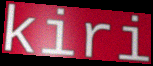
kiri